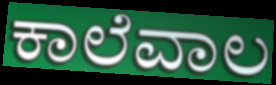
ಕಾಲೆವಾಲ